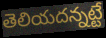
తెలియదన్నట్టే